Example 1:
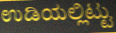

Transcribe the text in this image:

ಉಡಿಯಲ್ಲಿಟ್ಟು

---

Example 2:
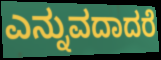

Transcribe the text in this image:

ಎನ್ನುವದಾದರೆ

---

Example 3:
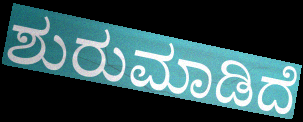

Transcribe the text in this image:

ಶುರುಮಾಡಿದೆ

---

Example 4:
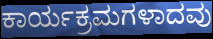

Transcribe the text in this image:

ಕಾರ್ಯಕ್ರಮಗಳಾದವು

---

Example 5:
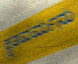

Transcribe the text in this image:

ಕೃತವರ್ಮನು